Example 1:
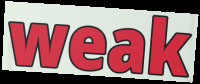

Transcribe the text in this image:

weak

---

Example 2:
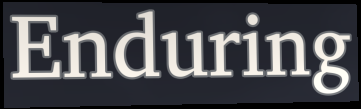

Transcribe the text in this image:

Enduring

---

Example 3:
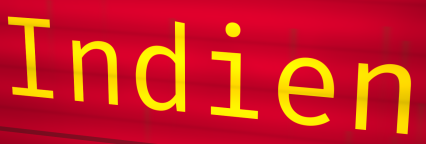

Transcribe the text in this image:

Indien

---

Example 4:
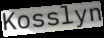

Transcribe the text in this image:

Kosslyn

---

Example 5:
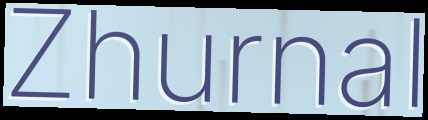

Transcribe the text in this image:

Zhurnal